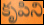
కృపిని